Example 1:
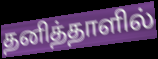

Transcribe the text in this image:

தனித்தாளில்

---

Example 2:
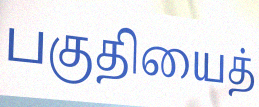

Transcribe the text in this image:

பகுதியைத்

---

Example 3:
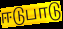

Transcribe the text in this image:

ஈடுபாடு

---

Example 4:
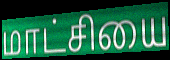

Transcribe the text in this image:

மாட்சியை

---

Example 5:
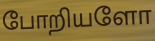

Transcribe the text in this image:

போறியளோ